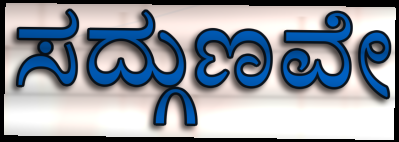
ಸದ್ಗುಣವೇ